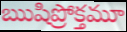
ఋషిప్రోక్తమూ